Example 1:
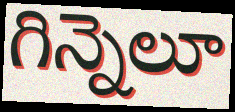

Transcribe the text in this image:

గిన్నెలూ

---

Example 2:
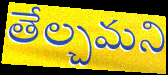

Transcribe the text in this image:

తేల్చమని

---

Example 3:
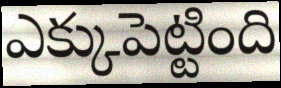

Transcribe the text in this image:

ఎక్కుపెట్టింది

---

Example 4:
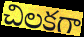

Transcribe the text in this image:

చిలకగా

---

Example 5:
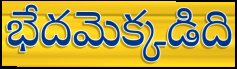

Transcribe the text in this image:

భేదమెక్కడిది